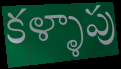
కళ్ళాపు